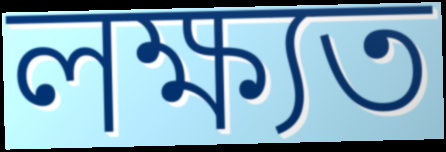
লক্ষ্যত